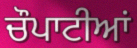
ਚੌਪਾਟੀਆਂ